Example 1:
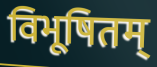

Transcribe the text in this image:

विभूषितम्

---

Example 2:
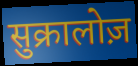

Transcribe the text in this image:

सुक्रालोज़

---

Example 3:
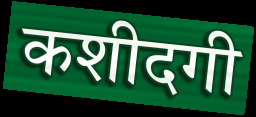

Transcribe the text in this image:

कशीदगी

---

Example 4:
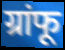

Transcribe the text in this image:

ग्रांफू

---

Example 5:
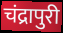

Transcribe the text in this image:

चंद्रापुरी